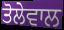
ਤੋਲੇਵਾਲ